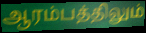
ஆரம்பத்திலும்